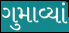
ગુમાવ્યાં